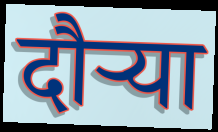
दौऱ्या